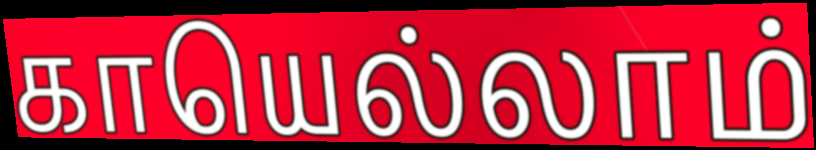
காயெல்லாம்